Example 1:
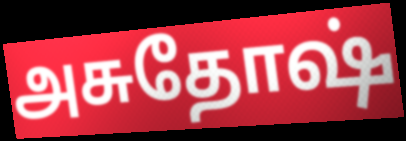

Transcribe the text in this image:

அசுதோஷ்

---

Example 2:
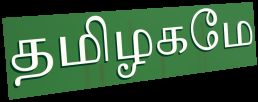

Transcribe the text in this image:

தமிழகமே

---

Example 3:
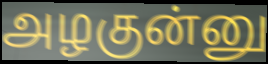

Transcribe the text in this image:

அழகுன்னு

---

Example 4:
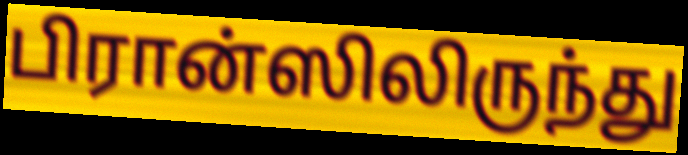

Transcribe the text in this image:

பிரான்ஸிலிருந்து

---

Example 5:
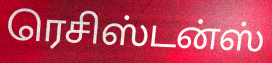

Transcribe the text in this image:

ரெசிஸ்டன்ஸ்